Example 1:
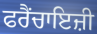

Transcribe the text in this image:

ਫਰੈਂਚਾਇਜ਼ੀ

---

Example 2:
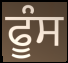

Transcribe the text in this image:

ਫੂੰਸ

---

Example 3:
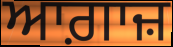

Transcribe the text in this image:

ਆਗ਼ਾਜ਼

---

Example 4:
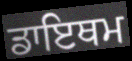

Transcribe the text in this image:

ਡਾਇਥਮ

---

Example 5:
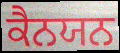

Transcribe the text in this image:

ਕੈਨਯਨ